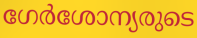
ഗേർശോന്യരുടെ